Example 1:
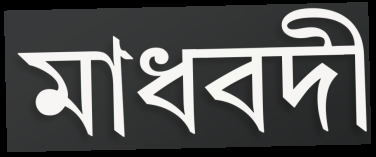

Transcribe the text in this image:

মাধবদী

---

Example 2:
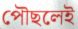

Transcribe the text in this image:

পৌছলেই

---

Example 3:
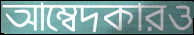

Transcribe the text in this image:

আম্বেদকারও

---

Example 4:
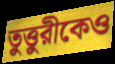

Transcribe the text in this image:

তুত্তুরীকেও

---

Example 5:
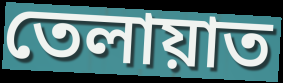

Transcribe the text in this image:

তেলায়াত